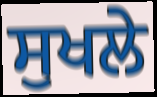
ਸੁਖਲੇ